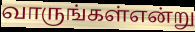
வாருங்கள்என்று